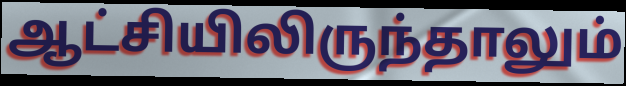
ஆட்சியிலிருந்தாலும்